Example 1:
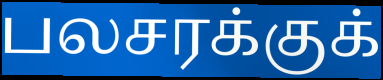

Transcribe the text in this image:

பலசரக்குக்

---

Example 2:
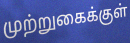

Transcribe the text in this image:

முற்றுகைக்குள்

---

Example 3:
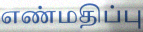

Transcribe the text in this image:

எண்மதிப்பு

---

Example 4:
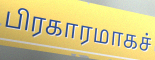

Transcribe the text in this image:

பிரகாரமாகச்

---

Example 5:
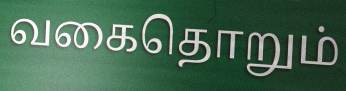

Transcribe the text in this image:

வகைதொறும்